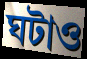
ঘটাও